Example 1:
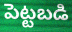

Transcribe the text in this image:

పెట్టబడి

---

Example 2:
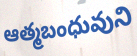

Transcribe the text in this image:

ఆత్మబంధువుని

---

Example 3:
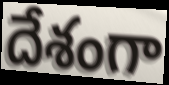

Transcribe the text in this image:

దేశంగా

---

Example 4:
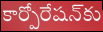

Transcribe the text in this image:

కార్పోరేషన్‌కు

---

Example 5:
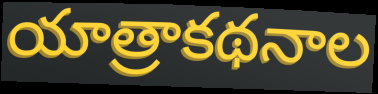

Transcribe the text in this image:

యాత్రాకథనాల